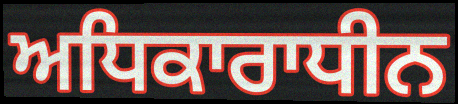
ਅਧਿਕਾਰਾਧੀਨ